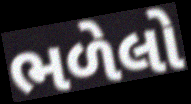
ભળેલો